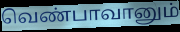
வெண்பாவானும்